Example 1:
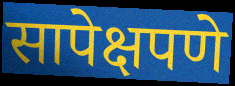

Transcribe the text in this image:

सापेक्षपणे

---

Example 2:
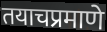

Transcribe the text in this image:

तयाचप्रमाणे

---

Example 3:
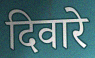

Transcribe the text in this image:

दिवारे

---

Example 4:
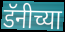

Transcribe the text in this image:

डॅनीच्या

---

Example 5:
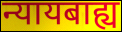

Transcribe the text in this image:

न्यायबाह्य